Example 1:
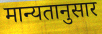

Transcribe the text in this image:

मान्यतानुसार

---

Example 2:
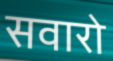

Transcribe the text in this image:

सवारो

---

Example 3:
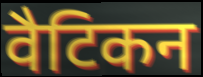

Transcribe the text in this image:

वैटिकन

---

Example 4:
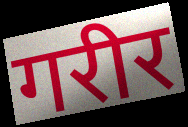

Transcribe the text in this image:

गरीर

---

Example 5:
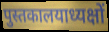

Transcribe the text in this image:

पुस्तकालयाध्यक्षों